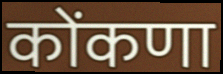
कोंकणा